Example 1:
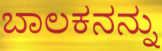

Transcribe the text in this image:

ಬಾಲಕನನ್ನು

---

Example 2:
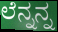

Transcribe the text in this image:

ಲೆನ್ನನ್ನ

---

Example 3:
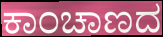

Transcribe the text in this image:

ಕಾಂಚಾಣದ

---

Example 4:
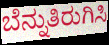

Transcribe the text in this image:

ಬೆನ್ನುತಿರುಗಿಸಿ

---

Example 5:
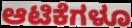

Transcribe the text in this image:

ಆಟಿಕೆಗಳೂ